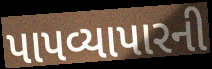
પાપવ્યાપારની